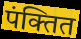
पंक्तित